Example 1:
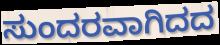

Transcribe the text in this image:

ಸುಂದರವಾಗಿದದ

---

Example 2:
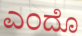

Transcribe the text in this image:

ಎಂದೊ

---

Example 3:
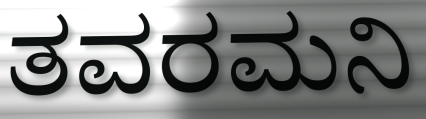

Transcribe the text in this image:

ತವರಮನಿ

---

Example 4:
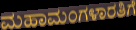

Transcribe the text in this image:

ಮಹಾಮಂಗಳಾರತಿಗೆ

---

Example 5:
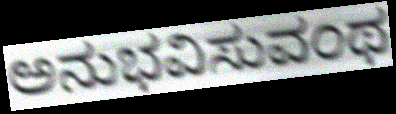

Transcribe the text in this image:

ಅನುಭವಿಸುವಂಥ